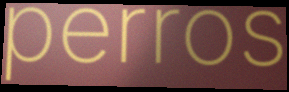
perros